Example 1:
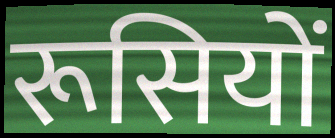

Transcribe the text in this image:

रूसियों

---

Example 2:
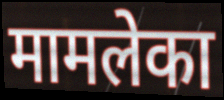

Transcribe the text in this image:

मामलेका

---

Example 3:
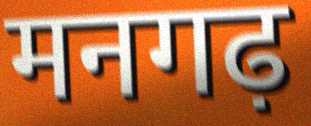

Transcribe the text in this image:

मनगढ़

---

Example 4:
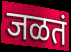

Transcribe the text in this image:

जळतं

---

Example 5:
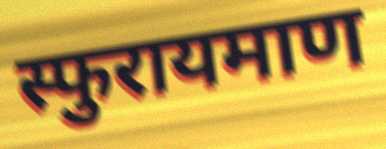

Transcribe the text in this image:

स्फुरायमाण